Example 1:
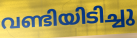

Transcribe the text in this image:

വണ്ടിയിടിച്ചു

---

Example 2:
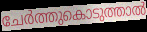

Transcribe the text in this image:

ചേർത്തുകൊടുത്താൽ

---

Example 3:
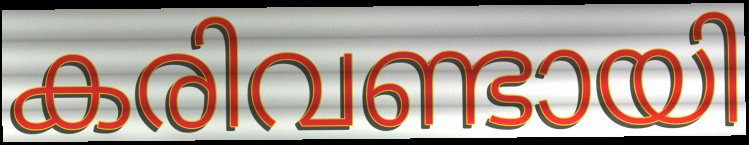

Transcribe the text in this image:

കരിവണ്ടായി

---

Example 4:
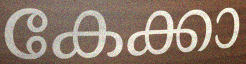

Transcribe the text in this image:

കേക്കാ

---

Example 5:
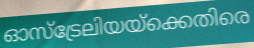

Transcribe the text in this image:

ഓസ്ട്രേലിയയ്ക്കെതിരെ